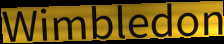
Wimbledon